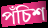
পঁচিশ